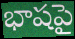
భాషపై